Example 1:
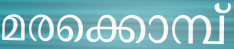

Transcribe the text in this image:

മരക്കൊമ്പ്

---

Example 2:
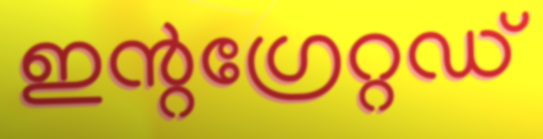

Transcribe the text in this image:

ഇന്റഗ്രേറ്റഡ്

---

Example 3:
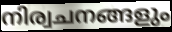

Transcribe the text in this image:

നിര്വചനങ്ങളും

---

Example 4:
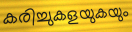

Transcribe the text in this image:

കരിച്ചുകളയുകയും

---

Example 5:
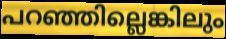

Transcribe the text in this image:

പറഞ്ഞില്ലെങ്കിലും